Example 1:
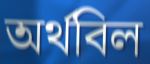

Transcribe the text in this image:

অর্থবিল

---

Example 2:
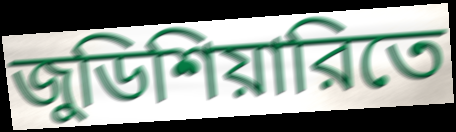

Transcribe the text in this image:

জুডিশিয়ারিতে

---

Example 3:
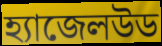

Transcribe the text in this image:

হ্যাজেলউড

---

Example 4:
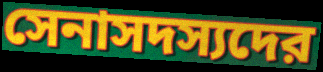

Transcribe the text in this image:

সেনাসদস্যদের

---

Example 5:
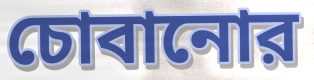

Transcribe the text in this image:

চোবানোর